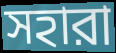
সহারা